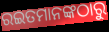
ରଇତମାନଙ୍କଠାରୁ